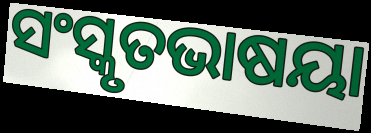
ସଂସ୍କୃତଭାଷୟା